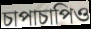
চাপাচাপিও